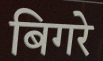
बिगरे